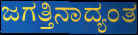
ಜಗತ್ತಿನಾದ್ಯಂತ